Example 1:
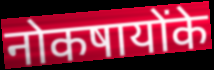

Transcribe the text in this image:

नोकषायोंके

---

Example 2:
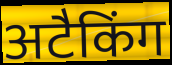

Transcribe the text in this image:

अटैकिंग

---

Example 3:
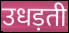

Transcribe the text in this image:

उधड़ती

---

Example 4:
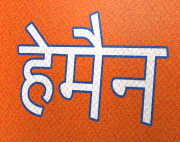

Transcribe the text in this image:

हेमैन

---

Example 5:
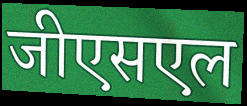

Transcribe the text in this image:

जीएसएल